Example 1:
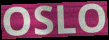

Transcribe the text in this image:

OSLO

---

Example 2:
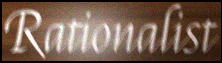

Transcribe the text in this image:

Rationalist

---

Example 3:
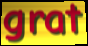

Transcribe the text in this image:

grat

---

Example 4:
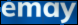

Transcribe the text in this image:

emay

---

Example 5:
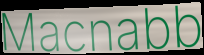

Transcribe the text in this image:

Macnabb